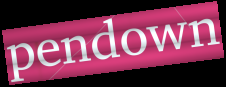
pendown